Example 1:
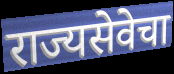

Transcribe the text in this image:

राज्यसेवेचा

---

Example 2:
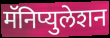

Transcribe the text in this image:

मॅनिप्युलेशन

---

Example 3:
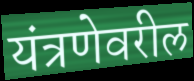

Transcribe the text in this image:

यंत्रणेवरील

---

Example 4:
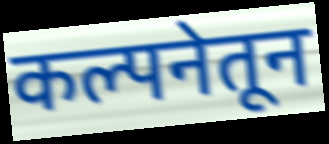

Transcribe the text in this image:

कल्पनेतून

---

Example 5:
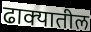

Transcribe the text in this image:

ढाक्यातील